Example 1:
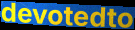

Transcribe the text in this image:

devotedto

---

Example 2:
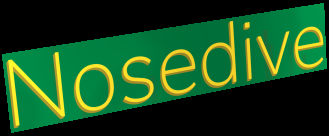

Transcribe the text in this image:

Nosedive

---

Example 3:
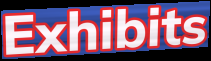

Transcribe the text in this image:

Exhibits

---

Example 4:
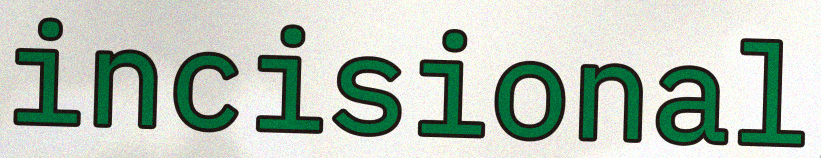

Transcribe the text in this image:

incisional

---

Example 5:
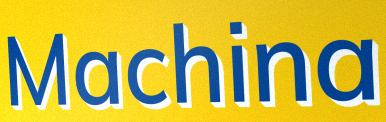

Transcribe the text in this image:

Machina